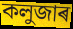
কলুজাৰ